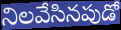
నిలవేసినపుడో